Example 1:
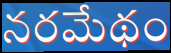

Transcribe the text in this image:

నరమేథం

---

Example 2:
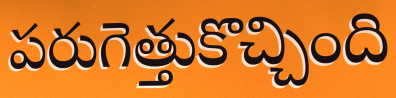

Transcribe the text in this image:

పరుగెత్తుకొచ్చింది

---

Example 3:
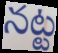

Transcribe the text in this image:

నట్ట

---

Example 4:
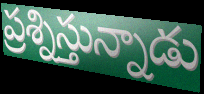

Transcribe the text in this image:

ప్రశ్నిస్తున్నాడు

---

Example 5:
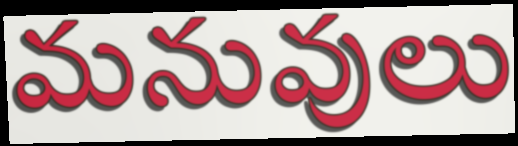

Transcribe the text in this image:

మనువులు